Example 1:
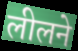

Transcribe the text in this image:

लीलने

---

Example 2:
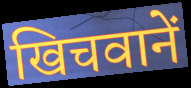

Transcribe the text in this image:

खिचवानें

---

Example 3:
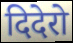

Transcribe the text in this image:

दिदेरो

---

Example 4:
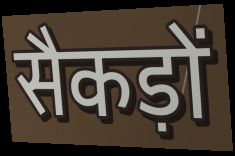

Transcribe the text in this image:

सैकड़ों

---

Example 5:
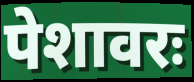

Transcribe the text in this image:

पेशावरः